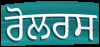
ਰੋਲਰਸ